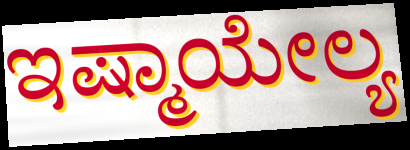
ಇಷ್ಮಾಯೇಲ್ಯ